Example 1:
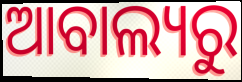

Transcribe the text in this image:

ଆବାଲ୍ୟରୁ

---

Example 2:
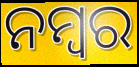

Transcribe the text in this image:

ନମ୍ବର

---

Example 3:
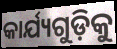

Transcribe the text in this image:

କାର୍ଯ୍ୟଗୁଡ଼ିକୁ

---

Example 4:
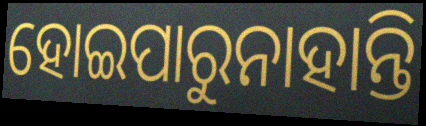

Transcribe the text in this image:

ହୋଇପାରୁନାହାନ୍ତି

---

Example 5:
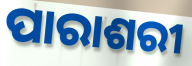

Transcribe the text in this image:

ପାରାଶରୀ